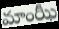
మాంఝీ